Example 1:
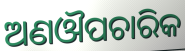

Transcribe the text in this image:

ଅଣଔପଚାରିକ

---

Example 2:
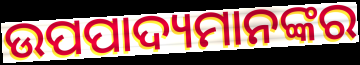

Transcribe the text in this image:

ଉପପାଦ୍ୟମାନଙ୍କର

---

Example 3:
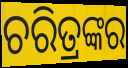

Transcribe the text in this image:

ଚରିତ୍ରଙ୍କର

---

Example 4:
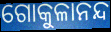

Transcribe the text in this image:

ଗୋକୁଳାନନ୍ଦ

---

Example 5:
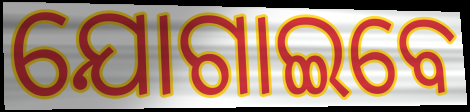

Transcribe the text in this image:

ଯୋଗାଇବେ